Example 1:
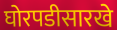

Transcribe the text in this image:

घोरपडीसारखे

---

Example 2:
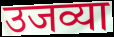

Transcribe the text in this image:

उजव्या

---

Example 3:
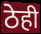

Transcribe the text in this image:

ठेही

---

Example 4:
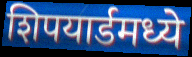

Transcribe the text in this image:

शिपयार्डमध्ये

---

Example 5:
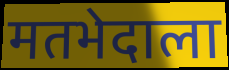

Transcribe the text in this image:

मतभेदाला